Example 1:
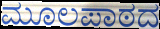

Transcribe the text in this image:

ಮೂಲಪಾಠದ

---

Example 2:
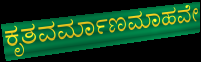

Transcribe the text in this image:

ಕೃತವರ್ಮಾಣಮಾಹವೇ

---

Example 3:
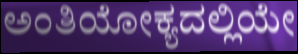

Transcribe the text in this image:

ಅಂತಿಯೋಕ್ಯದಲ್ಲಿಯೇ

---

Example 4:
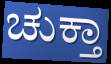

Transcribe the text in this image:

ಚುಕ್ತಾ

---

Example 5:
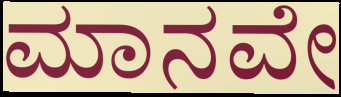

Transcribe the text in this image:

ಮಾನವೇ